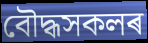
বৌদ্ধসকলৰ